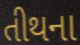
તીથના